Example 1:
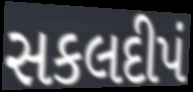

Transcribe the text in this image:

સકલદીપં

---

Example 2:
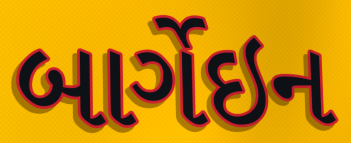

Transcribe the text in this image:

બાર્ગેઇન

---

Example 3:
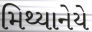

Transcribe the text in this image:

મિથ્યાનેયે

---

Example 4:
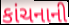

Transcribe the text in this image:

કાંચનાની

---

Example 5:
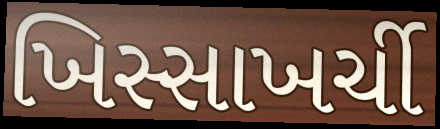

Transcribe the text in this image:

ખિસ્સાખર્ચી